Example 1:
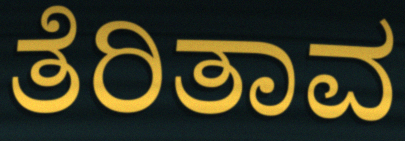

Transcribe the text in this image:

ತೆರಿತಾವ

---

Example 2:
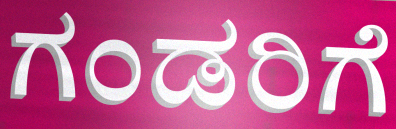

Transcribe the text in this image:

ಗಂಡರಿಗೆ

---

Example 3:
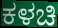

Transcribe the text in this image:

ಕಳಚಿ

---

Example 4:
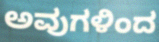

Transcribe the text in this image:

ಅವುಗಳಿಂದ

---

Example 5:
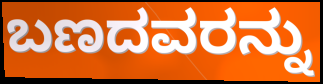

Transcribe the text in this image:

ಬಣದವರನ್ನು